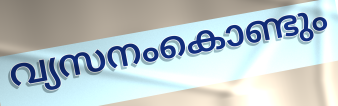
വ്യസനംകൊണ്ടും